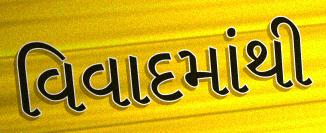
વિવાદમાંથી